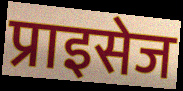
प्राइसेज